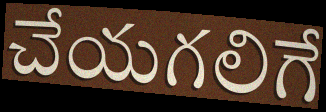
చేయగలిగే